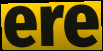
ere